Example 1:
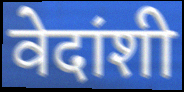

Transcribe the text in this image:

वेदांशी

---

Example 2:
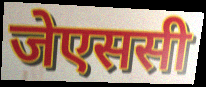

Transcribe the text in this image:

जेएससी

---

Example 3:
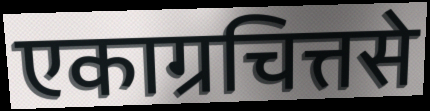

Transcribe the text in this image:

एकाग्रचित्तसे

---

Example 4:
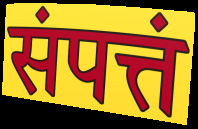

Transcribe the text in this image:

संपत्तं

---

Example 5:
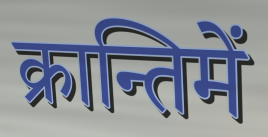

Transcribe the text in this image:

क्रान्तिमें